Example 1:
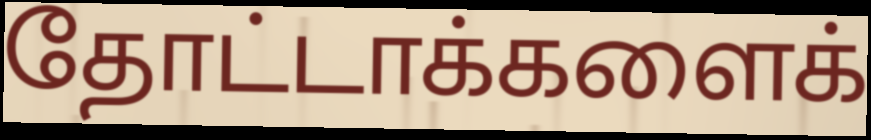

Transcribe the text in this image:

தோட்டாக்களைக்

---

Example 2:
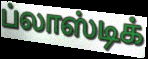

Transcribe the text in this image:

ப்லாஸ்டிக்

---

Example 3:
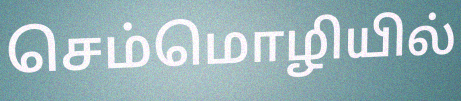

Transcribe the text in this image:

செம்மொழியில்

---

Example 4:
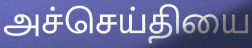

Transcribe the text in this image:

அச்செய்தியை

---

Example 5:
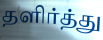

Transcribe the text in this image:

தளிர்த்து